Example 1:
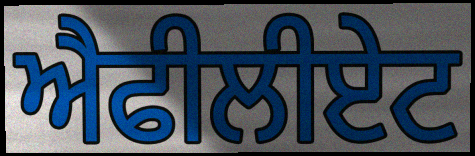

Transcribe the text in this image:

ਐਫੀਲੀਏਟ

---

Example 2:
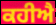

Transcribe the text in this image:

ਕਹੀਐ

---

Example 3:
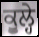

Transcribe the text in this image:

ਕੂਲ੍ਹੇ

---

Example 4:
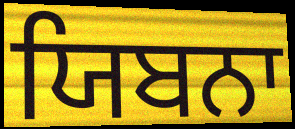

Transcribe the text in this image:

ਯਿਬਨਾ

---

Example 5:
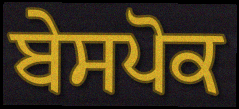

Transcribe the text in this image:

ਬੇਸਪੋਕ